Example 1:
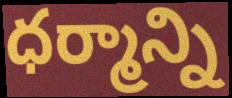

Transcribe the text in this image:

ధర్మాన్ని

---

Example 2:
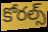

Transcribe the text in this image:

కోరల్స్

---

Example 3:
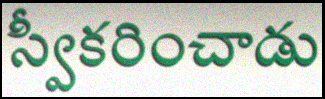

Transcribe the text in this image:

స్వీకరించాడు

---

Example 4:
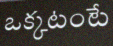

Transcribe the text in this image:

ఒక్కటంటే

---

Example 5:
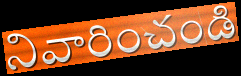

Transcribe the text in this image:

నివారించండి